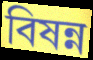
বিষন্ন